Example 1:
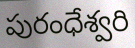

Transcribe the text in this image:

పురంధేశ్వరి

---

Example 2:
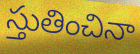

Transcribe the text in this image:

స్తుతించినా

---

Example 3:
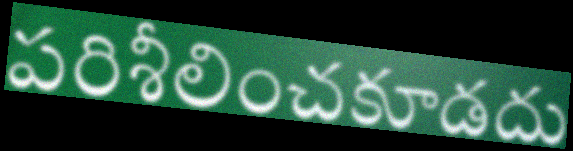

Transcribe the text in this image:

పరిశీలించకూడదు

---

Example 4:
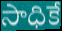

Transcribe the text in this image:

సాధికే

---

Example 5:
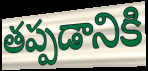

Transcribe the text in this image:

తప్పడానికి